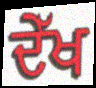
ਦੇੱਖ